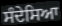
ਸੰਦੇਸਿਆ